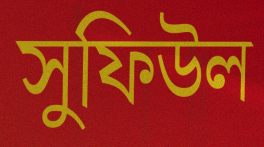
সুফিউল